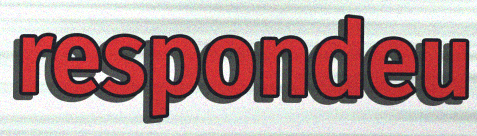
respondeu